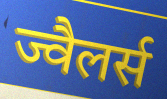
ज्वैलर्स